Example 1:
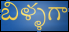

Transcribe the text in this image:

బిళ్ళగా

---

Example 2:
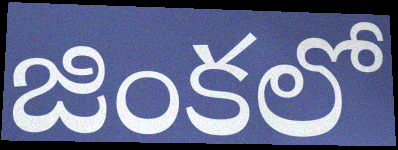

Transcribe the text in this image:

జింకలో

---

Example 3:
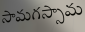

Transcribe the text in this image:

సామగస్సామ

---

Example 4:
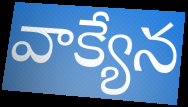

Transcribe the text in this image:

వాక్యేన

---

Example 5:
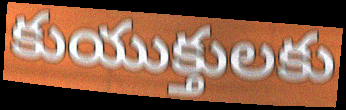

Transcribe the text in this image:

కుయుక్తులకు